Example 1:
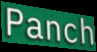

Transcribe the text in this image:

Panch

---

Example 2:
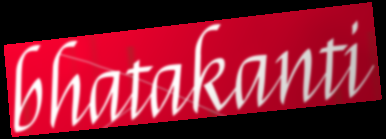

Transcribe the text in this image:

bhatakanti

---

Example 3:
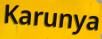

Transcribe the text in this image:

Karunya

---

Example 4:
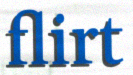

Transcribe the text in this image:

flirt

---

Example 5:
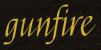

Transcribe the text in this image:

gunfire